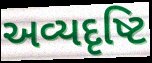
અવ્યદૃષ્ટિ